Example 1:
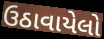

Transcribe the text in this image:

ઉઠાવાયેલો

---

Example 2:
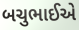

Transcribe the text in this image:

બચુભાઈએ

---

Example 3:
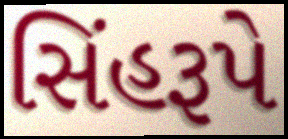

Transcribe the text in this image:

સિંહરૂપે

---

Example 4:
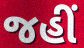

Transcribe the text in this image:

જહીં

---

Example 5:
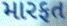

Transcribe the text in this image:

મારફત